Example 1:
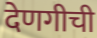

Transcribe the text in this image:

देणगीची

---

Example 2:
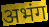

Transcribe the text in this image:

अभंग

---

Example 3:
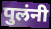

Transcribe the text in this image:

पुलंनी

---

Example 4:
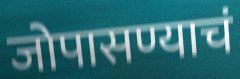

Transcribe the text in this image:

जोपासण्याचं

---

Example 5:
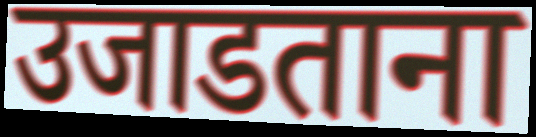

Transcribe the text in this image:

उजाडताना